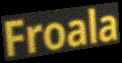
Froala